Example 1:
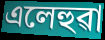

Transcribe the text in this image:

এলেহুৱা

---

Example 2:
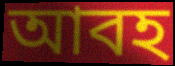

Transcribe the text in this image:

আবহ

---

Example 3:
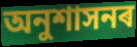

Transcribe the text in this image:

অনুশাসনৰ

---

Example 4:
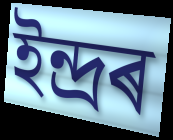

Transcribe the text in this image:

ইন্দ্ৰৰ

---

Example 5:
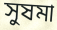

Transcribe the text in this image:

সুষমা